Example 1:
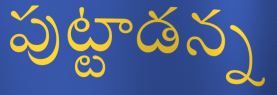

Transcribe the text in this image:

పుట్టాడన్న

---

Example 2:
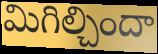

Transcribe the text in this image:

మిగిల్చిందా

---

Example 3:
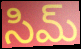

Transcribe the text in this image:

సిమ్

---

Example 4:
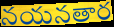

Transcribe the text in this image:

నయనతార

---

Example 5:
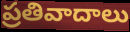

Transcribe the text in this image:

ప్రతివాదాలు